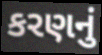
કરણનું